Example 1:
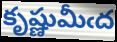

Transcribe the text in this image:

కృష్ణుమీఁద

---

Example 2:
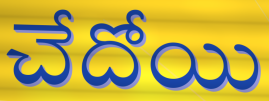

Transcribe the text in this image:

చేదోయి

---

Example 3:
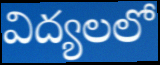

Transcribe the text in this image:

విద్యలలో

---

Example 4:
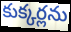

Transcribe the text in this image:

కుక్కర్లను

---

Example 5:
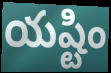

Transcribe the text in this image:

యష్టిం